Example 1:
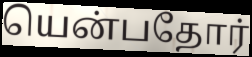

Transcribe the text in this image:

யென்பதோர்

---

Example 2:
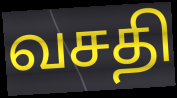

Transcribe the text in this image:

வசதி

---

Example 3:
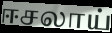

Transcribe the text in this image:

ஈசலாய்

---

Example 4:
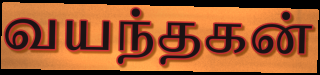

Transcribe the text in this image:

வயந்தகன்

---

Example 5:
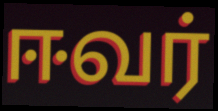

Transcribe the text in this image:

ஈவர்